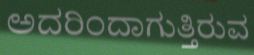
ಅದರಿಂದಾಗುತ್ತಿರುವ